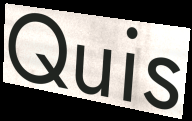
Quis